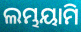
ଲମ୍ଭୟାମି